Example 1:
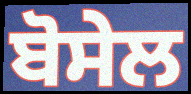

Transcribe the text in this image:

ਬੋਸੇਲ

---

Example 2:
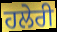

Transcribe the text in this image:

ਹਲੇਰੀ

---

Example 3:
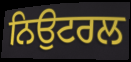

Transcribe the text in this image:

ਨਿਉਟਰਲ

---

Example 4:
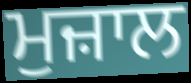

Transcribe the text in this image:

ਮੁਜ਼ਾਲ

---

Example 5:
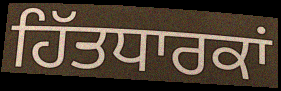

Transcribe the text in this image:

ਹਿੱਤਧਾਰਕਾਂ